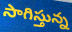
సాగిస్తున్న